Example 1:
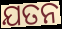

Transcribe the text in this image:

ଯତନ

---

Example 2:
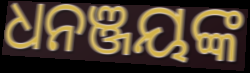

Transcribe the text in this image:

ଧନଞ୍ଜୟଙ୍କ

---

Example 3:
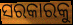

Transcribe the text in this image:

ସରକାରକୁ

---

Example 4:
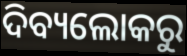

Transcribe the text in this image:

ଦିବ୍ୟଲୋକରୁ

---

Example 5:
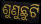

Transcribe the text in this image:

ଶୁଣୁଛୁଟି